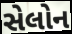
સેલોન